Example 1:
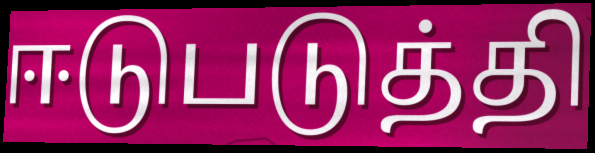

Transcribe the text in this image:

ஈடுபடுத்தி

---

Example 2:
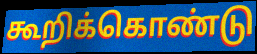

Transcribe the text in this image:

கூறிக்கொண்டு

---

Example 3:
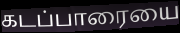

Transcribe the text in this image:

கடப்பாரையை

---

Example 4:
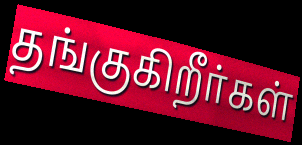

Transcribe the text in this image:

தங்குகிறீர்கள்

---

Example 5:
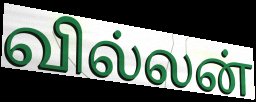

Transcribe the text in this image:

வில்லன்